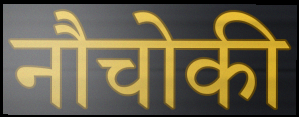
नौचोकी